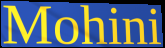
Mohini